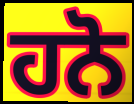
ਹਨੋ